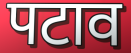
पटाव